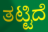
ತಟ್ಟಿದೆ